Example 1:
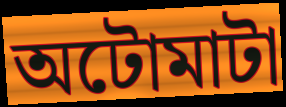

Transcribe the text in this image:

অটোমাটা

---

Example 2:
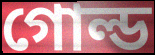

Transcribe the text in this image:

গোল্ড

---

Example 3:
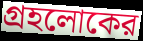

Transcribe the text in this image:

গ্রহলোকের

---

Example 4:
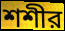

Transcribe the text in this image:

শশীর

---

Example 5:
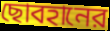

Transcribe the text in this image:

ছোবহানের